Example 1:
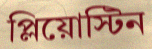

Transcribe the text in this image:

প্লিয়োস্টিন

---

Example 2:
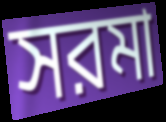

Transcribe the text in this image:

সরমা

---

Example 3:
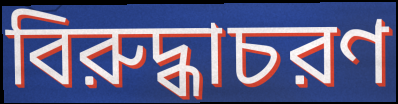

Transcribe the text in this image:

বিরুদ্ধাচরণ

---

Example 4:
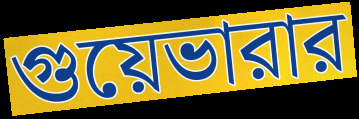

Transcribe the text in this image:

গুয়েভারার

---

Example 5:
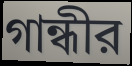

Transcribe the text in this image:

গান্ধীর